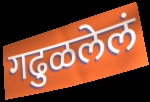
गढुळलेलं